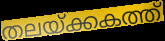
തലയ്ക്കകത്ത്